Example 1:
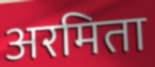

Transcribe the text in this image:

अरमिता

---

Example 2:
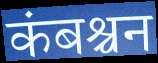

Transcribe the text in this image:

कंबश्चन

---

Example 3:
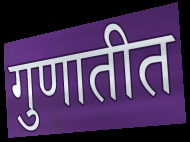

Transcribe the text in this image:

गुणातीत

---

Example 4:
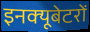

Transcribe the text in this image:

इनक्यूबेटरों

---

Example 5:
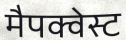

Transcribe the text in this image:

मैपक्वेस्ट